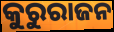
କୁରୁରାଜନ